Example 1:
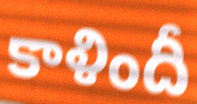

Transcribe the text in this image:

కాళిందీ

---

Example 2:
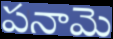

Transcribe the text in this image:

పనామె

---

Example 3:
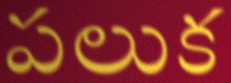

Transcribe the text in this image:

పలుక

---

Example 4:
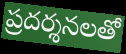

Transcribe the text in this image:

ప్రదర్శనలతో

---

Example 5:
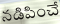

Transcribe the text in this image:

నడిపించే